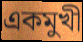
একমুখী